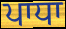
ਪਾਧਾ